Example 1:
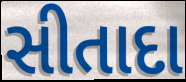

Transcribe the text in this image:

સીતાદા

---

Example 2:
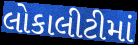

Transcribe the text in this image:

લોકાલીટીમાં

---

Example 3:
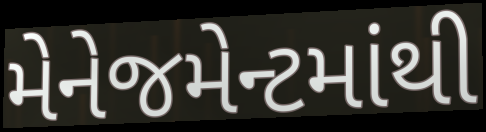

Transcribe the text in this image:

મેનેજમેન્ટમાંથી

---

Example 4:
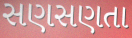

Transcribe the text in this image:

સણસણતા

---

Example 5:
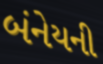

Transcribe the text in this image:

બંનેયની